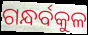
ଗନ୍ଧର୍ବକୁଳ